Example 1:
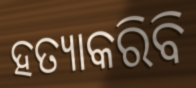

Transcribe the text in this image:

ହତ୍ୟାକରିବି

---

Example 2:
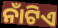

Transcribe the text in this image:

ନାଁଟିଏ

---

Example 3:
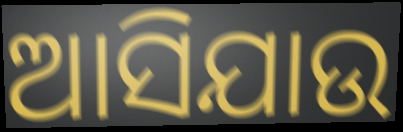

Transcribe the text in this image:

ଆସିଯାଉ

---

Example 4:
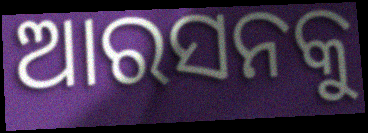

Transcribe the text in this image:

ଆରସନକୁ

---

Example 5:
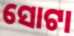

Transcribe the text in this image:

ସୋଟା